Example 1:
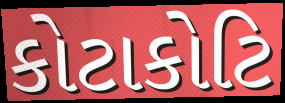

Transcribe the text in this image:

કોટાકોટિ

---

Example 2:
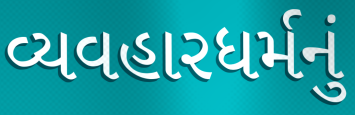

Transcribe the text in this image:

વ્યવહારધર્મનું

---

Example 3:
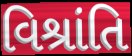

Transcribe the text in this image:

વિશ્રાંતિ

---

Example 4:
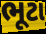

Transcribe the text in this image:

ભૂટા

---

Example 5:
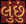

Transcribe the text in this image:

લુંછું